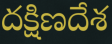
దక్షిణదేశ